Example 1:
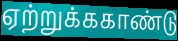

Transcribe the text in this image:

ஏற்றுக்ககாண்டு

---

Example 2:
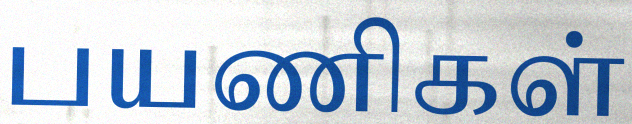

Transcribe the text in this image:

பயணிகள்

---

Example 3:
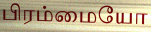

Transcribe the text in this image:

பிரம்மையோ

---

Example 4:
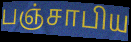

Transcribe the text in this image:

பஞ்சாபிய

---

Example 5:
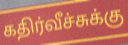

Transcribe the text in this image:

கதிர்வீச்சுக்கு